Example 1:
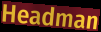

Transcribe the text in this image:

Headman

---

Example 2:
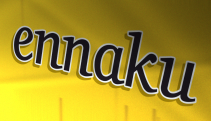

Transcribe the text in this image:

ennaku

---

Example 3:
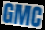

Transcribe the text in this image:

GMC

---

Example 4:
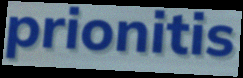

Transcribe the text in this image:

prionitis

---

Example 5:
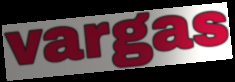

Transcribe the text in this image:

vargas